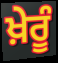
ਖ਼ੇਰੂੰ